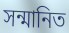
সন্মানিত